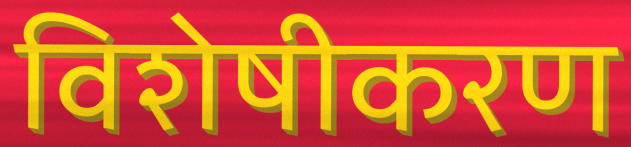
विशेषीकरण